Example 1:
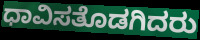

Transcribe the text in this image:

ಧಾವಿಸತೊಡಗಿದರು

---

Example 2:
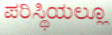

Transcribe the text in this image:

ಪರಿಸ್ಥಿಯಲ್ಲೂ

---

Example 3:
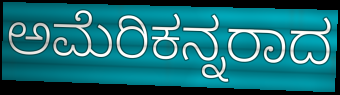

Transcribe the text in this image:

ಅಮೆರಿಕನ್ನರಾದ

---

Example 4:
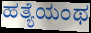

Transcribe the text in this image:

ಹತ್ಯೆಯಂಥ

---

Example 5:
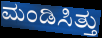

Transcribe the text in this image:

ಮಂಡಿಸಿತ್ತು